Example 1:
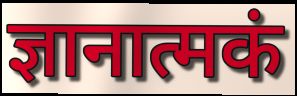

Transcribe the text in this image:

ज्ञानात्मकं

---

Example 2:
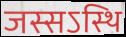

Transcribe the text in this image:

जस्सऽस्थि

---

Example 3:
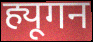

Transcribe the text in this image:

ह्यूगन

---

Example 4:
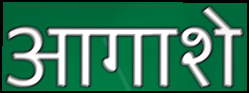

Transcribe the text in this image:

आगाशे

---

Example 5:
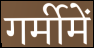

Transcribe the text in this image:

गर्मीमें